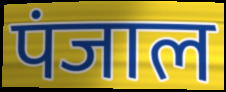
पंजाल